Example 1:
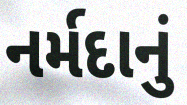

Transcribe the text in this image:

નર્મદાનું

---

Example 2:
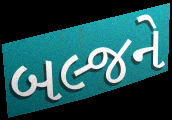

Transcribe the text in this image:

બલ્જને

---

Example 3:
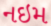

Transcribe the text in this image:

નઇમ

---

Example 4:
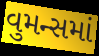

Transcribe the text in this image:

વુમન્સમાં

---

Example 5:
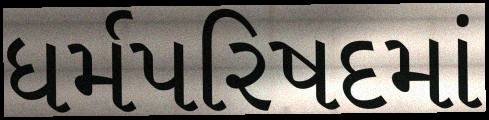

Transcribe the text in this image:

ધર્મપરિષદમાં